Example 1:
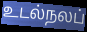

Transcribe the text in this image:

உடல்நலப்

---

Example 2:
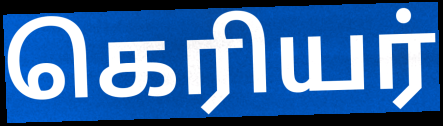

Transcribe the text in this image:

கெரியர்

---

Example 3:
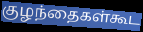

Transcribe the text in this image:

குழந்தைகள்கூட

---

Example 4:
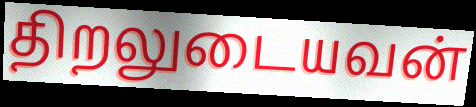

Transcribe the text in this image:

திறலுடையவன்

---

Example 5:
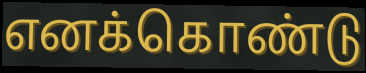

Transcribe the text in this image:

எனக்கொண்டு